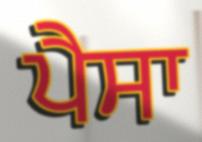
ਪੈਸਾ